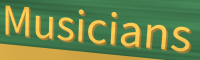
Musicians